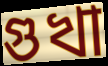
গুখা